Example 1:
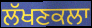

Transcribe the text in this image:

ਲੱਖਣਕਲਾ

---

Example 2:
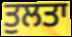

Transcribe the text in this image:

ਤੁਲਤਾ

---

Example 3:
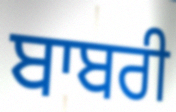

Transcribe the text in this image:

ਬਾਬਰੀ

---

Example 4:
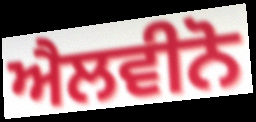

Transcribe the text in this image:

ਐਲਵੀਨੋ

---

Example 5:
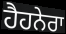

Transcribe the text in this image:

ਹੈਹਨੇਰਾ